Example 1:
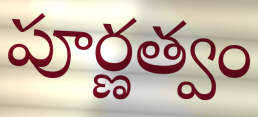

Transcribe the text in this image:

పూర్ణత్వం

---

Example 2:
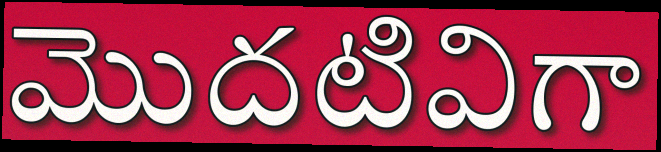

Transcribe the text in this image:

మొదటివిగా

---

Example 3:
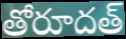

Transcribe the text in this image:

తోరూదత్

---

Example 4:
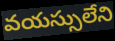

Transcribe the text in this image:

వయస్సులేని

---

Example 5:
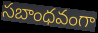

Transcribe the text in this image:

సబాంధవంగా